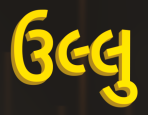
ઉલ્લુ